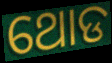
ଥୋଡ